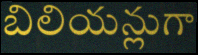
బిలియన్లుగా